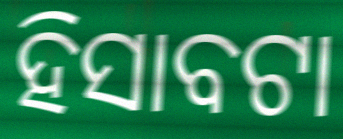
ହିସାବଟା